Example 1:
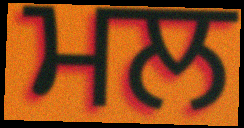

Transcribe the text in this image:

ਮਲ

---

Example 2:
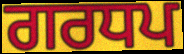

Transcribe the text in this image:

ਗਰਧਪ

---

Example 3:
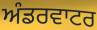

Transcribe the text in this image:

ਅੰਡਰਵਾਟਰ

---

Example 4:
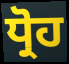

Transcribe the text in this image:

ਧ੍ਰੋਹ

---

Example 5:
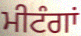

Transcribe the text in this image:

ਮੀਟੰਗਾਂ